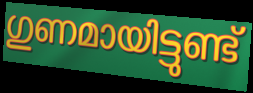
ഗുണമായിട്ടുണ്ട്